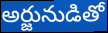
అర్జునుడితో